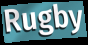
Rugby